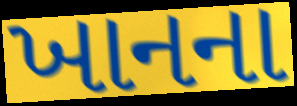
ખાનના